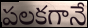
పలకగానే